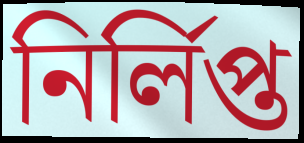
নির্লিপ্ত